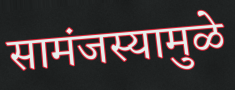
सामंजस्यामुळे